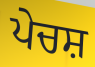
ਪੇਚਸ਼